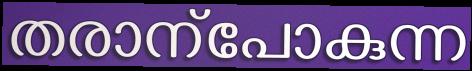
തരാന്പോകുന്ന